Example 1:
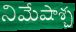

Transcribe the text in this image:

నిమేషాశ్చ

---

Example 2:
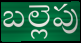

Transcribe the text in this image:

బల్లెపు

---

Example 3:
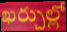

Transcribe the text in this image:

ఖర్చుల్లో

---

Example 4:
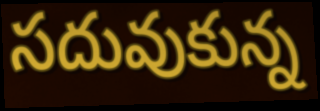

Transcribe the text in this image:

సదువుకున్న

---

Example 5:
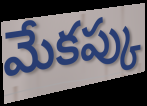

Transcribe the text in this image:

మేకప్కు